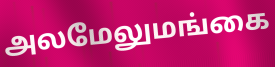
அலமேலுமங்கை